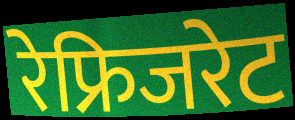
रेफ्रिजरेट